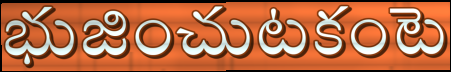
భుజించుటకంటె